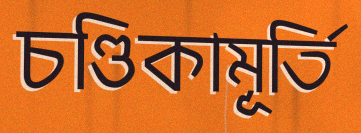
চণ্ডিকামূর্তি